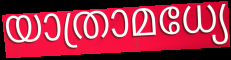
യാത്രാമധ്യേ